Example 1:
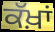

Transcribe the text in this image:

ਕੱਖ਼ਾਂ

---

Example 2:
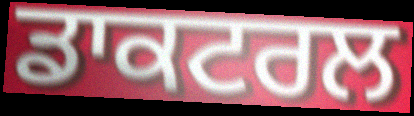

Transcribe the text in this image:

ਡਾਕਟਰਲ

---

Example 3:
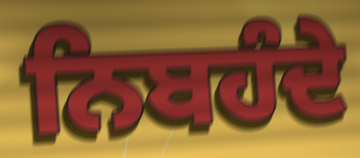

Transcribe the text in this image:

ਨਿਬਹੰਦੇ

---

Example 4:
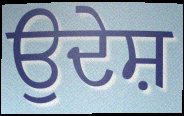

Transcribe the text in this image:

ਉਦੇਸ਼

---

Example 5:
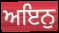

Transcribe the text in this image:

ਅਇਨੁ